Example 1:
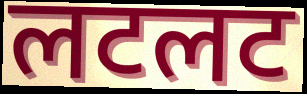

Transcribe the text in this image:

लटलट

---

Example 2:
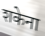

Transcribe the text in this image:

शकेना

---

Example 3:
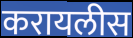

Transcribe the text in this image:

करायलीस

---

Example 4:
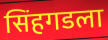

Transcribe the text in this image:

सिंहगडला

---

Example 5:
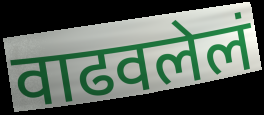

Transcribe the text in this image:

वाढवलेलं